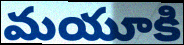
మయూకి